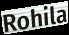
Rohila